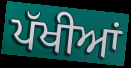
ਪੱਖੀਆਂ